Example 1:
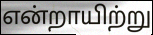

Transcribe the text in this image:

என்றாயிற்று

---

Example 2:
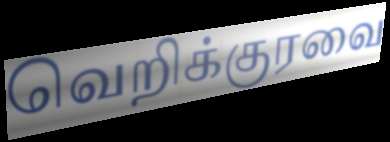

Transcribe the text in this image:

வெறிக்குரவை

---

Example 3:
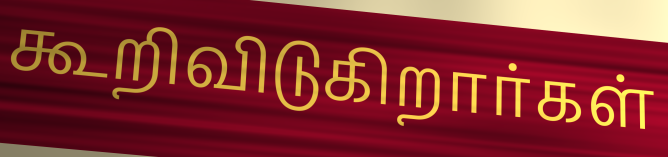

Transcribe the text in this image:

கூறிவிடுகிறார்கள்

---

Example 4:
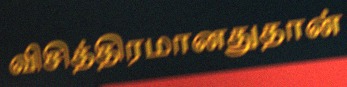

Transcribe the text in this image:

விசித்திரமானதுதான்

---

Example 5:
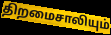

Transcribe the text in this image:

திறமைசாலியும்